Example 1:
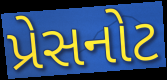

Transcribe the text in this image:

પ્રેસનોટ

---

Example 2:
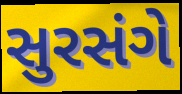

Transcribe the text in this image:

સુરસંગે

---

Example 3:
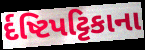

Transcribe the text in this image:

ર્દષ્ટિપટ્ટિકાના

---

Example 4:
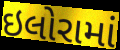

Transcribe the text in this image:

ઇલોરામાં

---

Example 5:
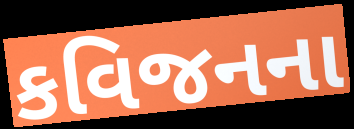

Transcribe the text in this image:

કવિજનના